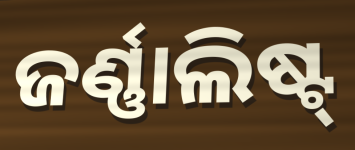
ଜର୍ଣ୍ଣାଲିଷ୍ଟ୍